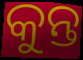
କୁନ୍ତ